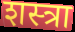
शस्त्रा